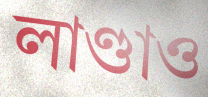
লাণ্ডাও